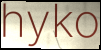
hyko